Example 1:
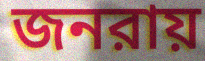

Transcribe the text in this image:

জনরায়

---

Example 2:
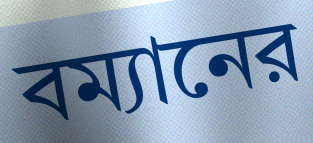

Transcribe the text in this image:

বম্যানের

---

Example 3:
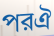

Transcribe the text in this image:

পরঐ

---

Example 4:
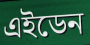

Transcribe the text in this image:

এইডেন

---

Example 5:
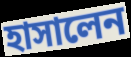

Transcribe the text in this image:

হাসালেন